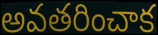
అవతరించాక